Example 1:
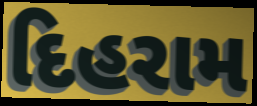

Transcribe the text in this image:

દિહરામ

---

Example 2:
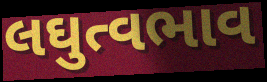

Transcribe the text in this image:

લઘુત્વભાવ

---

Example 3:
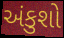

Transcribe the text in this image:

અંકુશો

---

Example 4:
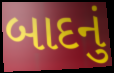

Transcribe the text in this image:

બાદનું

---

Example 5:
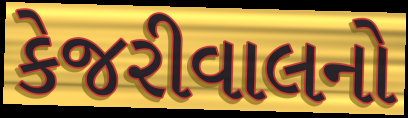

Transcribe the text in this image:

કેજરીવાલનો